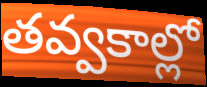
తవ్వకాల్లో